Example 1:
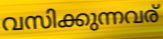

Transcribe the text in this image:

വസിക്കുന്നവര്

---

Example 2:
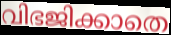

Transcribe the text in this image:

വിഭജിക്കാതെ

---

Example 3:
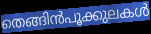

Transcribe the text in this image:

തെങ്ങിൻപൂക്കുലകൾ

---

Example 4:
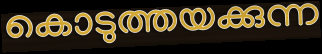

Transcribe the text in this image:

കൊടുത്തയക്കുന്ന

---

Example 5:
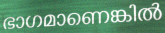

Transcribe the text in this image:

ഭാഗമാണെങ്കിൽ